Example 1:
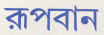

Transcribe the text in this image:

রূপবান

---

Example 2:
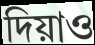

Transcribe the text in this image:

দিয়াও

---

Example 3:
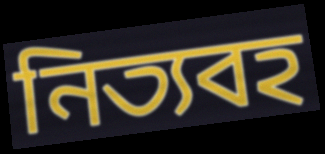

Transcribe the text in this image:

নিত্যবহ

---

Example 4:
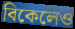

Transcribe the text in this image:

বিকেলেও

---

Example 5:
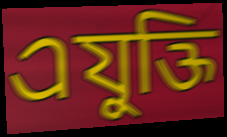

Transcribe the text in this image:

এযুক্তি